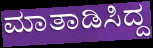
ಮಾತಾಡಿಸಿದ್ದ